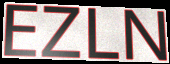
EZLN